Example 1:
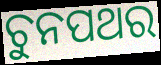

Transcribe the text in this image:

ଚୁନପଥର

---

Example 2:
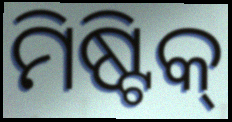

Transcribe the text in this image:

ମିଷ୍ଟିକ୍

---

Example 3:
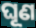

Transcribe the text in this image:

ଘୂଣ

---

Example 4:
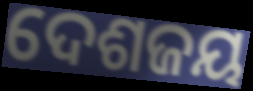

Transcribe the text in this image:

ଦେଶଜୟ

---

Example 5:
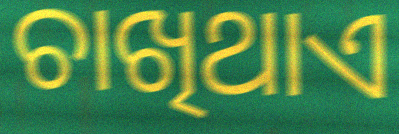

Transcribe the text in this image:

ଚାଖିଥାଏ